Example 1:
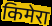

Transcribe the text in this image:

किमेरा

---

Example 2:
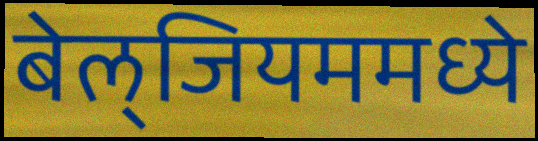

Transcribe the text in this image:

बेल्जियममध्ये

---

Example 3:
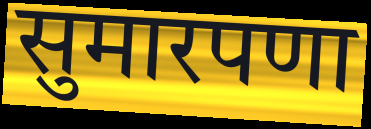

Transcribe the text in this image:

सुमारपणा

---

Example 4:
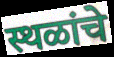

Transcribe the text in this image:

स्थळांचे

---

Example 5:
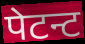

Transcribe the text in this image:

पेटन्ट